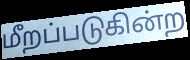
மீறப்படுகின்ற